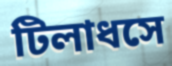
টিলাধসে